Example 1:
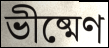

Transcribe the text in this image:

ভীষ্মেণ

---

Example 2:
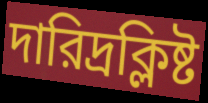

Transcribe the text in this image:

দারিদ্রক্লিষ্ট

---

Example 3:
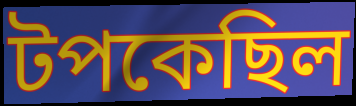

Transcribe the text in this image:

টপকেছিল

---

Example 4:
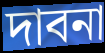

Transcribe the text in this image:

দাবনা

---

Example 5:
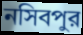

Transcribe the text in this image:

নসিবপুর